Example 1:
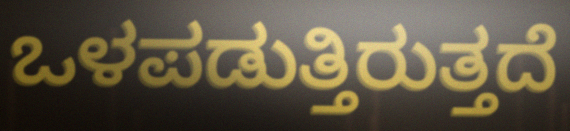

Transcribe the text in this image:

ಒಳಪಡುತ್ತಿರುತ್ತದೆ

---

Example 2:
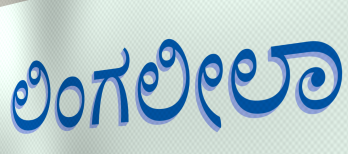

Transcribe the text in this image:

ಲಿಂಗಲೀಲಾ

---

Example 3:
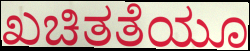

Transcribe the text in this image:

ಖಚಿತತೆಯೂ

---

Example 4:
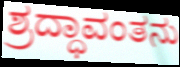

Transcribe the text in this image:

ಶ್ರದ್ಧಾವಂತನು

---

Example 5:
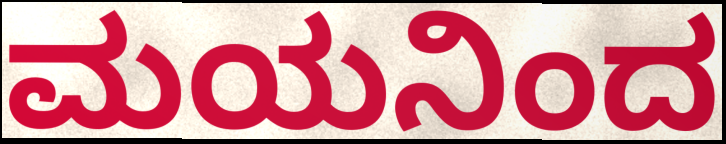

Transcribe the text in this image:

ಮಯನಿಂದ